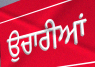
ਉਚਾਰੀਆਂ